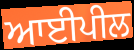
ਆਈਪੀਲ